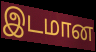
இடமான